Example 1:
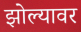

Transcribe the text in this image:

झोल्यावर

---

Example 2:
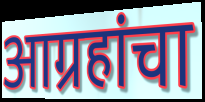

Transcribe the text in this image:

आग्रहांचा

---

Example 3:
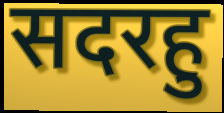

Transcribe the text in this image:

सदरहु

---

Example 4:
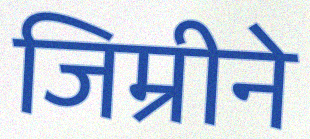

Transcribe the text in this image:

जिम्रीने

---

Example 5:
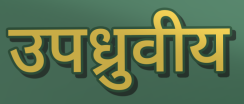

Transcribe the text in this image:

उपध्रुवीय